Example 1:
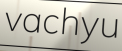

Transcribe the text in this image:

vachyu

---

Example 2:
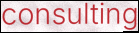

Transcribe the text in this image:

consulting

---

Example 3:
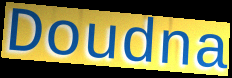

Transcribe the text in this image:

Doudna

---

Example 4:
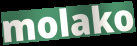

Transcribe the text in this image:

molako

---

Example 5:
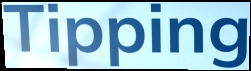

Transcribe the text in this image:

Tipping